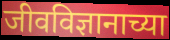
जीवविज्ञानाच्या